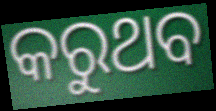
କରୁଥବ